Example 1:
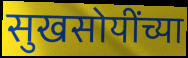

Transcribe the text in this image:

सुखसोयींच्या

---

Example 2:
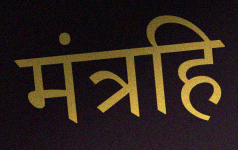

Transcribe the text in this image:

मंत्रहि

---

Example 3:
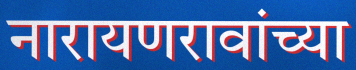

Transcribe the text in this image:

नारायणरावांच्या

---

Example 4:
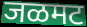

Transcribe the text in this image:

जळमट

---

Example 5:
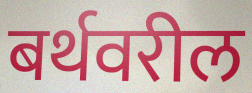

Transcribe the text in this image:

बर्थवरील